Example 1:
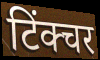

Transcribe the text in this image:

टिंक्चर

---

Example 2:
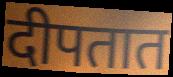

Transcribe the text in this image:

दीपतात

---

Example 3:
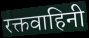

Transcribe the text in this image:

रक्तवाहिनी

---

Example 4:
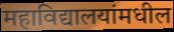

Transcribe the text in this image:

महाविद्यालयांमधील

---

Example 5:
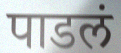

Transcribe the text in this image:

पाडलं